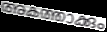
അകത്താക്കും